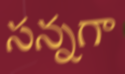
సన్నగా